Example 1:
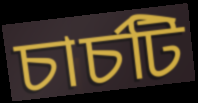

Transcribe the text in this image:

চার্চটি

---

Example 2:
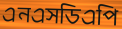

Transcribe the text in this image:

এনএসডিএপি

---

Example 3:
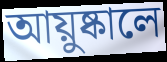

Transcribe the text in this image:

আয়ুষ্কালে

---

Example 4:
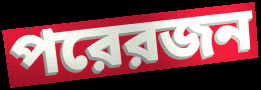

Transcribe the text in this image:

পরেরজন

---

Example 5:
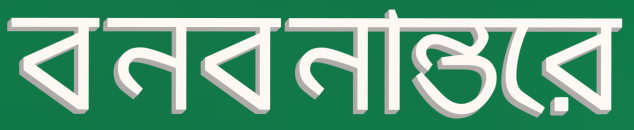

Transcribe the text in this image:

বনবনান্তরে